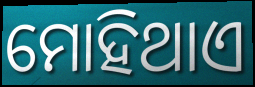
ମୋହିଥାଏ